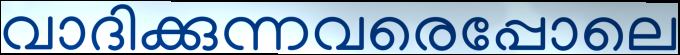
വാദിക്കുന്നവരെപ്പോലെ